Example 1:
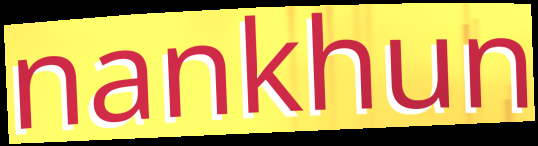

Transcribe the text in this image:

nankhun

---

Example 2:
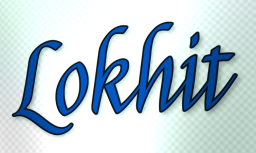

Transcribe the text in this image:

Lokhit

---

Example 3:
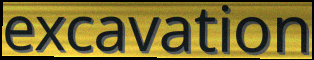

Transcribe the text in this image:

excavation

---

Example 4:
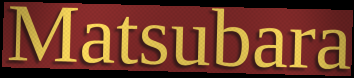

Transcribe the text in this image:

Matsubara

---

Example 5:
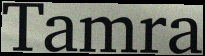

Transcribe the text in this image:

Tamra